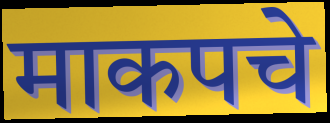
माकपचे